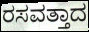
ರಸವತ್ತಾದ